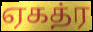
ஏகத்ர